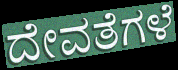
ದೇವತೆಗಳೆ